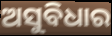
ଅସୁବିଧାର